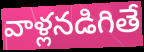
వాళ్లనడిగితే